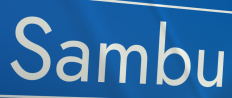
Sambu